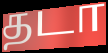
தடா